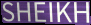
SHEIKH